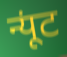
न्यूंट